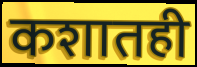
कशातही